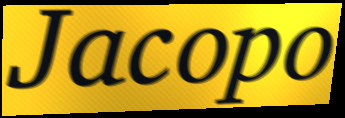
Jacopo